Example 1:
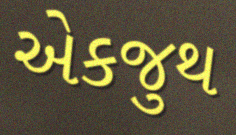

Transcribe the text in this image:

એકજુથ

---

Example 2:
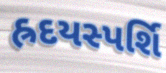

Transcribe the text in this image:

હ્રદયસ્પર્શિ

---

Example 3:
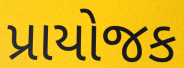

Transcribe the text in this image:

પ્રાયોજક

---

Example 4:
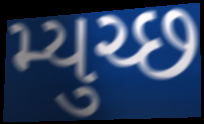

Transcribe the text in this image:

મ્યુચ્છ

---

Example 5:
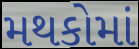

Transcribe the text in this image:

મથકોમાં